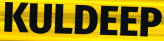
KULDEEP